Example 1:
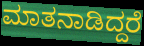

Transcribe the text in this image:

ಮಾತನಾಡಿದ್ದರೆ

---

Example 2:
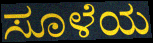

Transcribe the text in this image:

ಸೂಳೆಯ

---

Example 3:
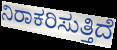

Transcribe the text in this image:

ನಿರಾಕರಿಸುತ್ತಿದೆ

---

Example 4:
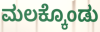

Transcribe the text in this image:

ಮಲಕ್ಕೊಂಡು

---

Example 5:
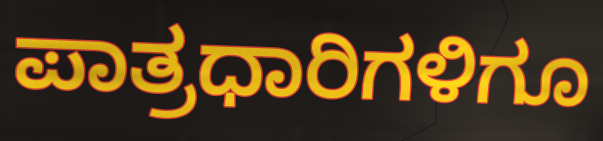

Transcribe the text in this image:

ಪಾತ್ರಧಾರಿಗಳಿಗೂ